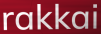
rakkai